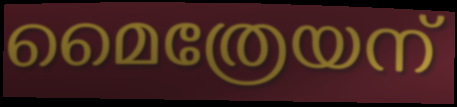
മൈത്രേയന്